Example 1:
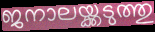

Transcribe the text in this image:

ജനാലയ്ക്കടുത്തു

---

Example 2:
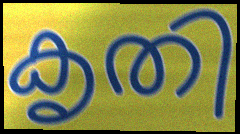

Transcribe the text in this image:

കൃതി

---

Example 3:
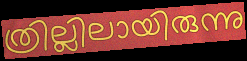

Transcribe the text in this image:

ത്രില്ലിലായിരുന്നു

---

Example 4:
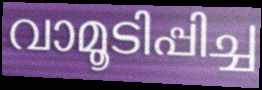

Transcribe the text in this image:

വാമൂടിപ്പിച്ച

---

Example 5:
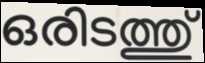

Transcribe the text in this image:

ഒരിടത്തു്